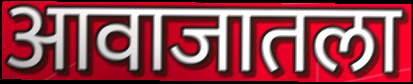
आवाजातला